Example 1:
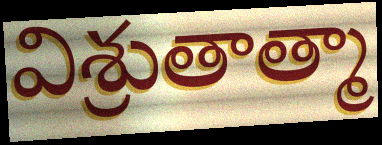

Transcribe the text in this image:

విశ్రుతాత్మా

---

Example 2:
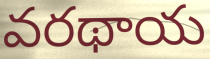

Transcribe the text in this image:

వరథాయ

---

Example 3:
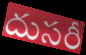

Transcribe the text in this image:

దుసరీ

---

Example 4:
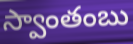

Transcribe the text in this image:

స్వాంతంబు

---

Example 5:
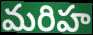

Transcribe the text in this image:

మరిహ